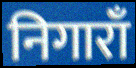
निगाराँ